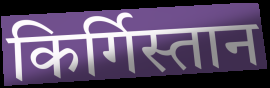
किर्गिस्‍तान